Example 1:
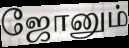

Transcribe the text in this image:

ஜோனும்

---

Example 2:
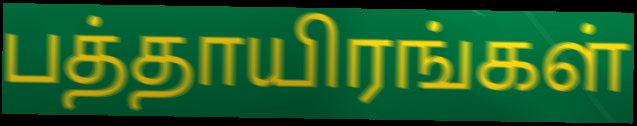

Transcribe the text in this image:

பத்தாயிரங்கள்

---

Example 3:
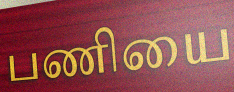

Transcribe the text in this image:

பணியை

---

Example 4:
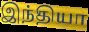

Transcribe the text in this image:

இந்தியா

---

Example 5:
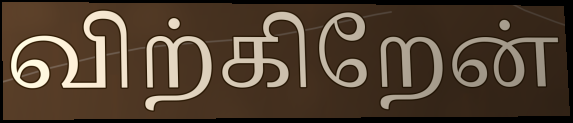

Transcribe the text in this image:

விற்கிறேன்